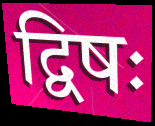
द्विषः